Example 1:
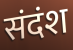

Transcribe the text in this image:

संदंश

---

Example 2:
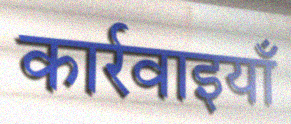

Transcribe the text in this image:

कार्रवाइयाँ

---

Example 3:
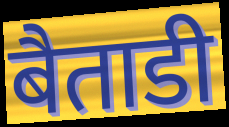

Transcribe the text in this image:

बैताडी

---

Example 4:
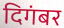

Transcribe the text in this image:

दिगंबर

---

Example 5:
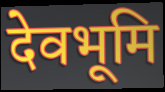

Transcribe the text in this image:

देवभूमि